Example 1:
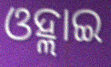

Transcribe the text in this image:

ଓହ୍ଲାଇ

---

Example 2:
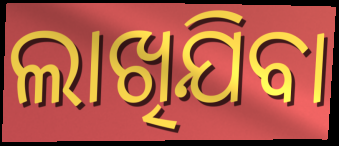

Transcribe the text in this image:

ଲାଖିଯିବା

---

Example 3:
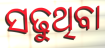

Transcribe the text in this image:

ସଢୁଥିବା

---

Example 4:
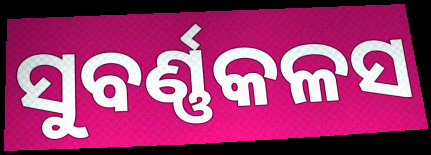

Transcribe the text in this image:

ସୁବର୍ଣ୍ଣକଳସ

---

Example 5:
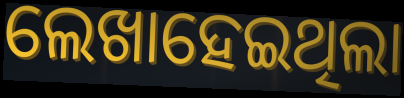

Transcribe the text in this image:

ଲେଖାହେଇଥିଲା